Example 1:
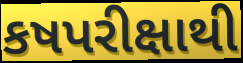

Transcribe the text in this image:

કષપરીક્ષાથી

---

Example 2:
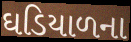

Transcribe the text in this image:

ઘડિયાળના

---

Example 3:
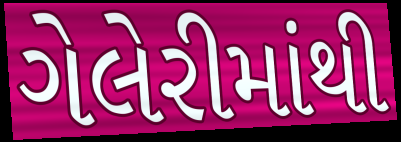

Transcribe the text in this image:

ગેલેરીમાંથી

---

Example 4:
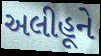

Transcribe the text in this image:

અલીહૂને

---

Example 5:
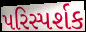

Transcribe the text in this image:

પરિસ્પર્શક